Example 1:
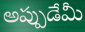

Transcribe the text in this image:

అప్పుడేమీ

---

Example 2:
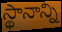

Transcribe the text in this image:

స్థానాన్ని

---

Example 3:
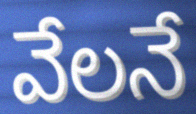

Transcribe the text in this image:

వేలనే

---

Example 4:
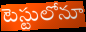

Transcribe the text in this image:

టెస్టులోనూ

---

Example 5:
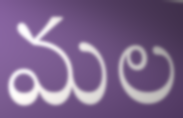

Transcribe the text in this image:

మల